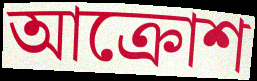
আক্রোশ